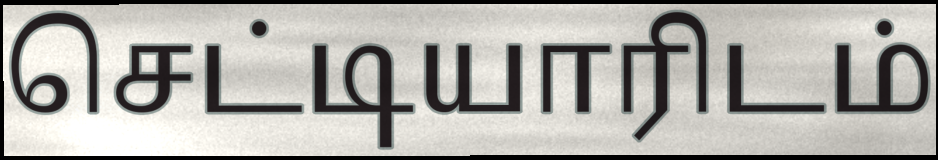
செட்டியாரிடம்